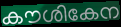
കൗശികേന